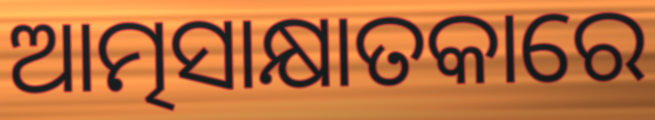
ଆତ୍ମସାକ୍ଷାତକାରେ